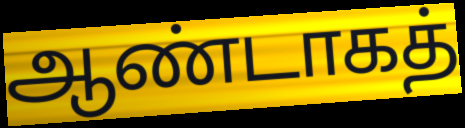
ஆண்டாகத்